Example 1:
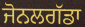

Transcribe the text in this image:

ਜੋਨਲਗੱਡਾ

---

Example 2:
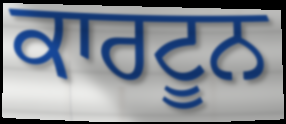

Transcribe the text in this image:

ਕਾਰਟੂਨ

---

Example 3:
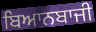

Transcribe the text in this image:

ਬਿਆਨਬਾਜੀ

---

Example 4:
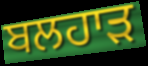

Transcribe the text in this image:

ਬਲਹਾੜ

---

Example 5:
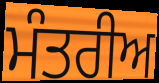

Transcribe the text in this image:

ਮੰਤਰੀਅ